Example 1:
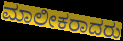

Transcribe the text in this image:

ಮಾಲೀಕರಾದರು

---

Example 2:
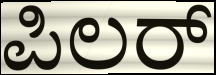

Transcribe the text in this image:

ಪಿಲರ್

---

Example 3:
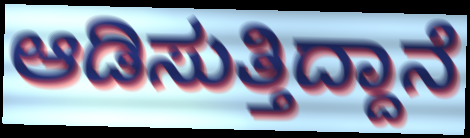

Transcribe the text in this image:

ಆಡಿಸುತ್ತಿದ್ದಾನೆ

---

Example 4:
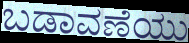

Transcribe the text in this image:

ಬಡಾವಣೆಯು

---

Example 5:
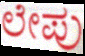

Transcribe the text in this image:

ಲೇಪು